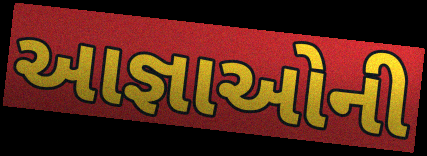
આજ્ઞાઓની